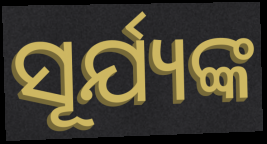
ସୂର୍ଯ୍ୟଙ୍କ